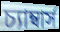
চ্যাম্বার্স